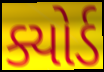
ક્યોર્ડ